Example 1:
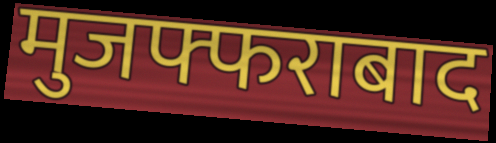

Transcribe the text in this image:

मुजफ्फराबाद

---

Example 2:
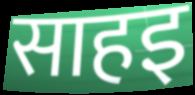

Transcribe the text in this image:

साहइ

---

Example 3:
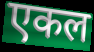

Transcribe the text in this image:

एकल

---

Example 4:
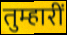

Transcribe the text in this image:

तुम्हारीं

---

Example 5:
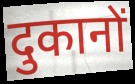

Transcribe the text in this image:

दुकानों